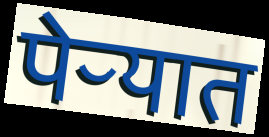
पेऱ्यात